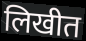
लिखीत